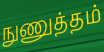
நுணுத்தம்